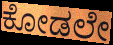
ಕೋಡಲೇ